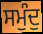
ਸਮੁੰਦੁ